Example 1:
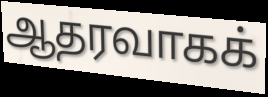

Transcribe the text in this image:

ஆதரவாகக்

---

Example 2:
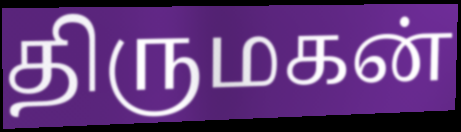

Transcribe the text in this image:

திருமகன்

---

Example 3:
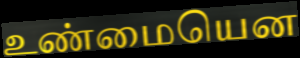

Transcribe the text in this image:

உண்மையென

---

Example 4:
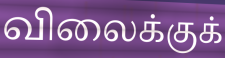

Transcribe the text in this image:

விலைக்குக்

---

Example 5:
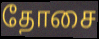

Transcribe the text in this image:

தோசை